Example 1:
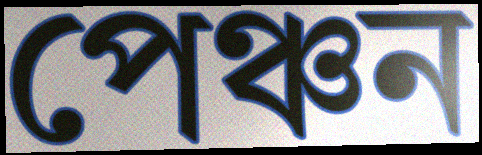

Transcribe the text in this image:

পেঞ্চন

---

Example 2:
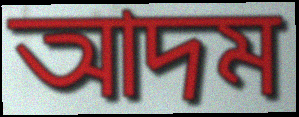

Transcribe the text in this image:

আদম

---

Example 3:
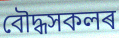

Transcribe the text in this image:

বৌদ্ধসকলৰ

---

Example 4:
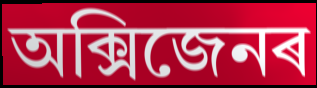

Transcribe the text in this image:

অক্সিজেনৰ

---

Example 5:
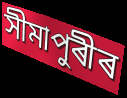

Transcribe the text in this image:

সীমাপুৰীৰ